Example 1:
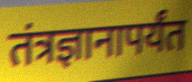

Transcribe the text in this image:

तंत्रज्ञानापर्यंत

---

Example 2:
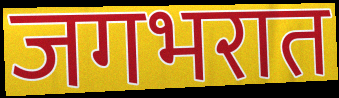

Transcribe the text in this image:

जगभरात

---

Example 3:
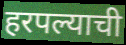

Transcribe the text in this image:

हरपल्याची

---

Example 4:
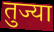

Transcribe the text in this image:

तुज्या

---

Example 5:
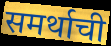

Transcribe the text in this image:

समर्थाची